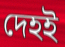
দেহই